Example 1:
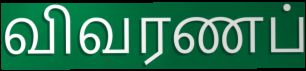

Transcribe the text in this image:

விவரணப்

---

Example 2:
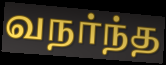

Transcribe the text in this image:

வநர்ந்த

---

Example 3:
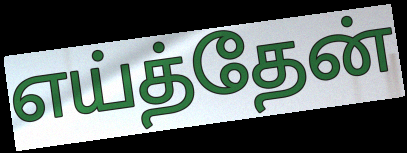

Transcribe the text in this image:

எய்த்தேன்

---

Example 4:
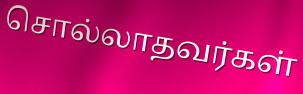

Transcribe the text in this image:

சொல்லாதவர்கள்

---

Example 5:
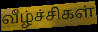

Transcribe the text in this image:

வீழ்ச்சிகள்